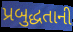
પ્રબુદ્ધતાની